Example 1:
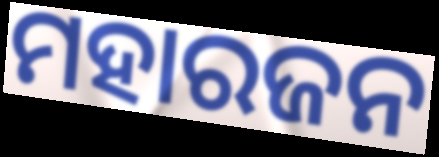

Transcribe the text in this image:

ମହାରଜନ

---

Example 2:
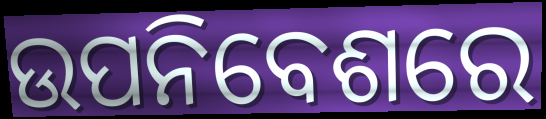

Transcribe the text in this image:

ଉପନିବେଶରେ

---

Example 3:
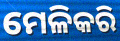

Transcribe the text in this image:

ମେଳିକରି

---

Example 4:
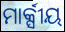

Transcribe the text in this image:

ମାର୍କ୍ସୀୟ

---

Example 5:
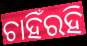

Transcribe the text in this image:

ଚାହିଁରହି